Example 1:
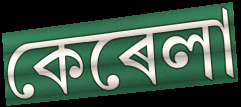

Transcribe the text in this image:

কেৰেলা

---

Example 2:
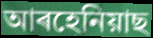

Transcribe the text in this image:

আৰহেনিয়াছ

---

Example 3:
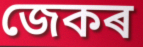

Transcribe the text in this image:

জেকৰ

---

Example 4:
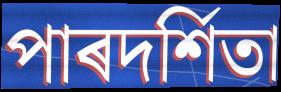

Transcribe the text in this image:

পাৰদৰ্শিতা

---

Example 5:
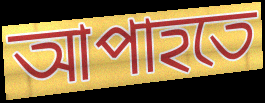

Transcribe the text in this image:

আপাহতে